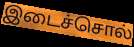
இடைச்சொல்